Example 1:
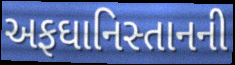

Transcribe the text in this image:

અફઘાનિસ્તાનની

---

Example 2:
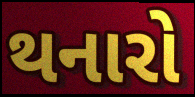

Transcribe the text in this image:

થનારો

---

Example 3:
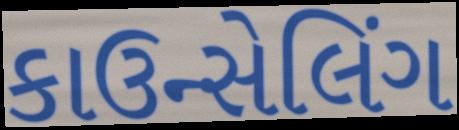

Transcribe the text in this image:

કાઉન્સેલિંગ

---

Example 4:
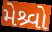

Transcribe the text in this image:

મેશ્ર્વો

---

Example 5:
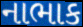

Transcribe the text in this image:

નાભાક